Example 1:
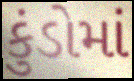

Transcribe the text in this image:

કુંડોમાં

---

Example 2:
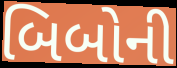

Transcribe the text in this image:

બિબોની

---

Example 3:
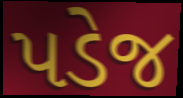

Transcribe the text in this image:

પડેજ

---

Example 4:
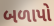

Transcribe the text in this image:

બળાપો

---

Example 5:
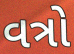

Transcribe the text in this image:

વત્રો